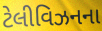
ટેલીવિઝનના